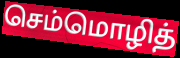
செம்மொழித்